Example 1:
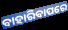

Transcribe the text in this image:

ବାହାରିବାପରେ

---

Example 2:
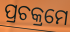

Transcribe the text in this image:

ପ୍ରଚକ୍ରମେ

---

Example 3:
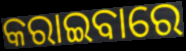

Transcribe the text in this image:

କରାଇବାରେ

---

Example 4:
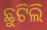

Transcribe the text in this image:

ଛୁଟିଲି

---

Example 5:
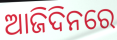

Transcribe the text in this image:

ଆଜିଦିନରେ